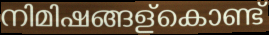
നിമിഷങ്ങള്കൊണ്ട്